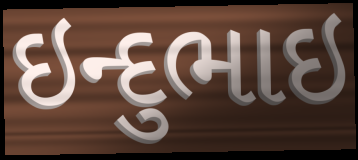
ઇન્દુભાઇ